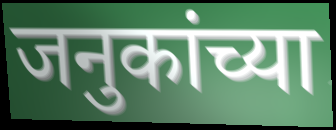
जनुकांच्या